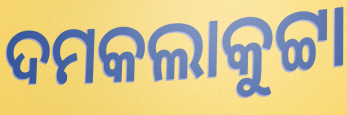
ଦମକଲାକୁଟ୍ଟା